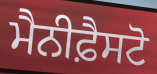
ਮੈਨੀਫ਼ੈਸਟੋ